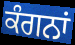
ਕੰਗਨਾਂ